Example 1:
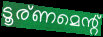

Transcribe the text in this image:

ടൂര്ണമെന്റ്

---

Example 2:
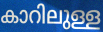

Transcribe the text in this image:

കാറിലുള്ള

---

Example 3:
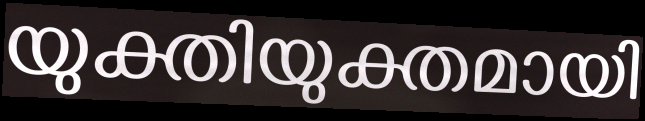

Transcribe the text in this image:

യുക്തിയുക്തമായി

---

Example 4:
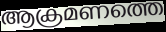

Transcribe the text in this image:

ആക്രമണത്തെ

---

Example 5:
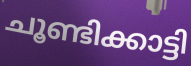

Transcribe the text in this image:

ചൂണ്ടിക്കാട്ടി